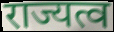
राज्यत्व